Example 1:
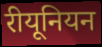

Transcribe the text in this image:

रीयूनियन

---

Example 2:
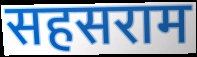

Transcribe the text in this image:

सहसराम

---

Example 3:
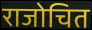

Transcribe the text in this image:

राजोचित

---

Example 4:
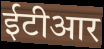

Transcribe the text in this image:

ईटीआर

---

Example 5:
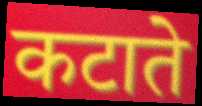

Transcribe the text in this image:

कटाते